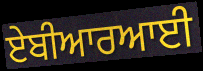
ਏਬੀਆਰਆਈ